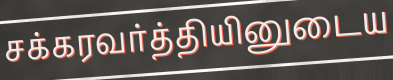
சக்கரவர்த்தியினுடைய